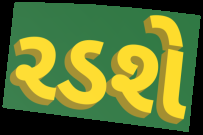
રડશે